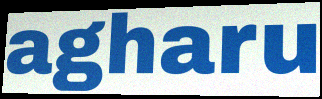
agharu